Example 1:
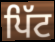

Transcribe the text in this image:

ਪਿੱਟ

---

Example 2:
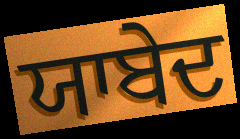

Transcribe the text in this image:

ਯਾਬੇਦ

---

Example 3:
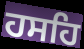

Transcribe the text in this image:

ਹਸਹਿ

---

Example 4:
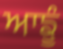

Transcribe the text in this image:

ਆਙੂੰ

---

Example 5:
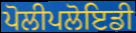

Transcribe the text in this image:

ਪੋਲੀਪਲੋਇਡੀ